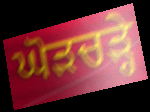
ਘੋੜਚੜ੍ਹੇ